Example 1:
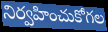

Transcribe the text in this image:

నిర్వహించుకోగల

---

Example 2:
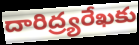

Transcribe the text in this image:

దారిద్ర్యరేఖకు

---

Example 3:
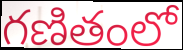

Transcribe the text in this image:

గణితంలో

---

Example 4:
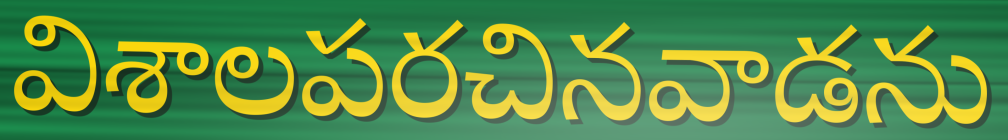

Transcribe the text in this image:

విశాలపరచినవాడను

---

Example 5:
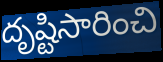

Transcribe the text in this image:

దృష్టిసారించి